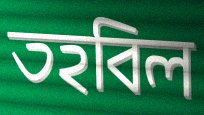
তহবিল